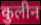
कुलीन